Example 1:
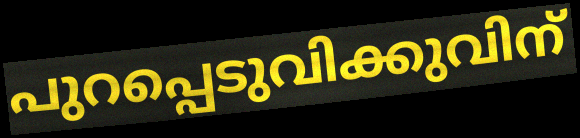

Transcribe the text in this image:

പുറപ്പെടുവിക്കുവിന്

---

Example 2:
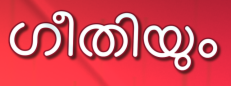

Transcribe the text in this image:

ഗീതിയും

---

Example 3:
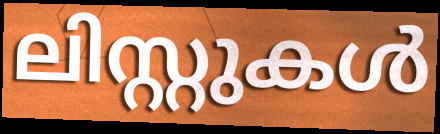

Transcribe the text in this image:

ലിസ്റ്റുകൾ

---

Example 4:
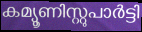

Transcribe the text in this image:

കമ്യൂണിസ്റ്റുപാർട്ടി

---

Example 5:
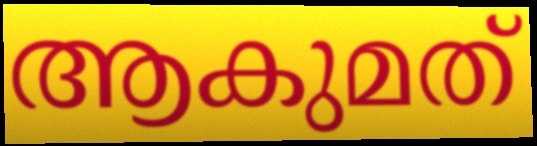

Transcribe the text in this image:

ആകുമത്